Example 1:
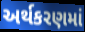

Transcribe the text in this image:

અર્થકરણમાં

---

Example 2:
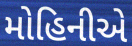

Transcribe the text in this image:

મોહિનીએ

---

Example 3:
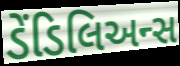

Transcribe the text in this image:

ડેંડિલિઅન્સ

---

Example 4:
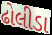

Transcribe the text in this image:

ઢોલીડા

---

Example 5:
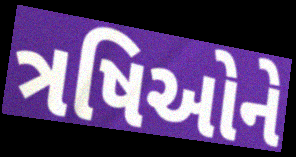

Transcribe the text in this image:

ત્રષિઓને